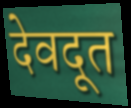
देवदूत